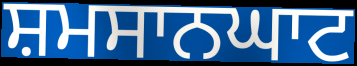
ਸ਼ਮਸਾਨਘਾਟ